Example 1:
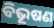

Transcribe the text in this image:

ବିଭୂଷଣ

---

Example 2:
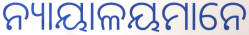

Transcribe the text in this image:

ନ୍ୟାୟାଳୟମାନେ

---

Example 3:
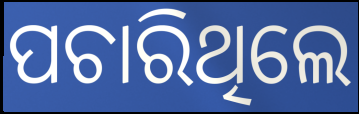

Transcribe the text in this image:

ପଚାରିଥିଲେ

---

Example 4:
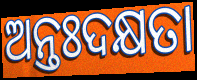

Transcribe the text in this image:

ଅନ୍ତଃଦକ୍ଷତା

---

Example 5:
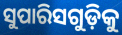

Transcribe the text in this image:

ସୁପାରିସଗୁଡ଼ିକୁ